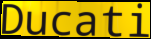
Ducati